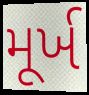
મૂર્ખ